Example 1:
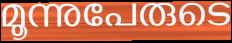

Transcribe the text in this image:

മൂന്നുപേരുടെ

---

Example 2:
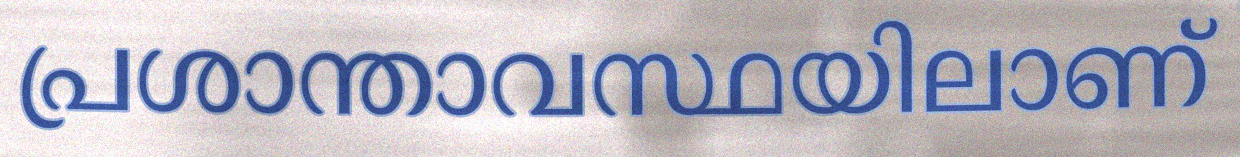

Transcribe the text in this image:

പ്രശാന്താവസ്ഥയിലാണ്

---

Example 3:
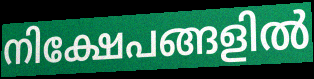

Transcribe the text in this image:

നിക്ഷേപങ്ങളിൽ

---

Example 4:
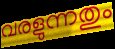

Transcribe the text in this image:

വരളുന്നതും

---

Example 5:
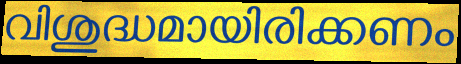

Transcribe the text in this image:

വിശുദ്ധമായിരിക്കണം